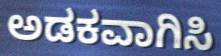
ಅಡಕವಾಗಿಸಿ